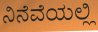
ನಿನೆವೆಯಲ್ಲಿ